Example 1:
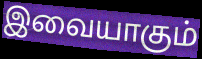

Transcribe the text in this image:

இவையாகும்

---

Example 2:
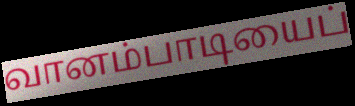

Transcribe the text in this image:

வானம்பாடியைப்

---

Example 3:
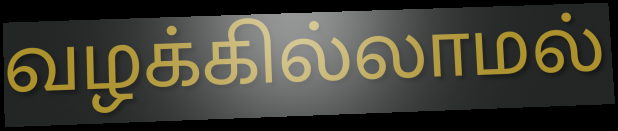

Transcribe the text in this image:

வழக்கில்லாமல்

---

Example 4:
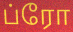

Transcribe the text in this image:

ப்ரோ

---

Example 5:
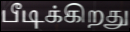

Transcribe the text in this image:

பீடிக்கிறது